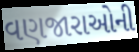
વણજારાઓની